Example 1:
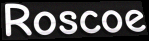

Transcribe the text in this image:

Roscoe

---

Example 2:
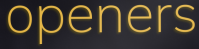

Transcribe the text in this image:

openers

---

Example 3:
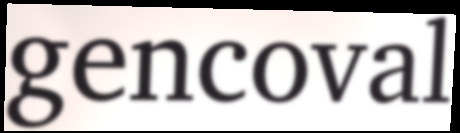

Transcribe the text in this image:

gencoval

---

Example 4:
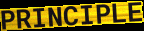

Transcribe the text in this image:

PRINCIPLE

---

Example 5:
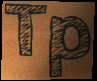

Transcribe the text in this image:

Tp